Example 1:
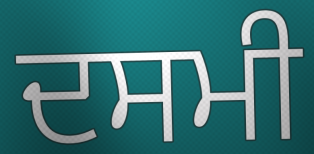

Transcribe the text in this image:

ਦਸਮੀ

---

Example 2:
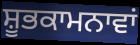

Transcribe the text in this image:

ਸ਼ੂਭਕਾਮਨਾਵਾਂ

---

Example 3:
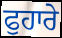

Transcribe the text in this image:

ਫੁਹਾਰੇ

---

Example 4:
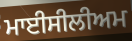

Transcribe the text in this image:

ਮਾਈਸੀਲੀਅਮ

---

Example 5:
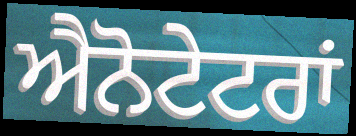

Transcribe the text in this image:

ਐਨੋਟੇਟਰਾਂ